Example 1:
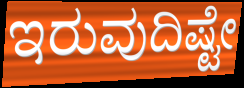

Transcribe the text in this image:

ಇರುವುದಿಷ್ಟೇ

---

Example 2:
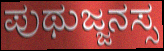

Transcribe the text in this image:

ಪುಥುಜ್ಜನಸ್ಸ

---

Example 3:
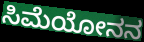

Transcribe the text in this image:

ಸಿಮೆಯೋನನ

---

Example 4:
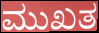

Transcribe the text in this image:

ಮುಖತ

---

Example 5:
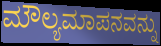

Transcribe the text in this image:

ಮೌಲ್ಯಮಾಪನವನ್ನು